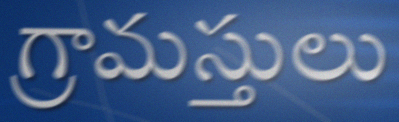
గ్రామస్తులు